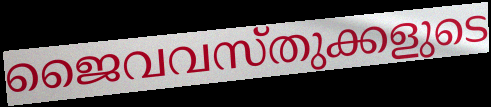
ജൈവവസ്തുക്കളുടെ